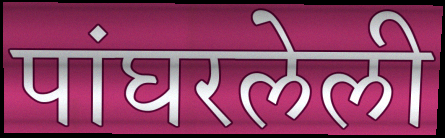
पांघरलेली